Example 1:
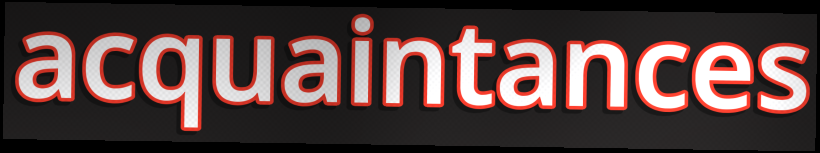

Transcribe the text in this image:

acquaintances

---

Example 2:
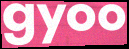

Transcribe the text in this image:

gyoo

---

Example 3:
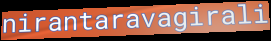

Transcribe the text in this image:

nirantaravagirali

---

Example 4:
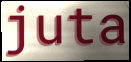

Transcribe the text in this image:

juta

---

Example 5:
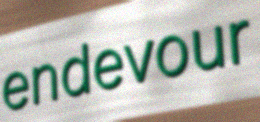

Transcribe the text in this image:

endevour